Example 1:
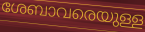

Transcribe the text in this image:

ശേബാവരെയുള്ള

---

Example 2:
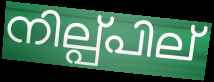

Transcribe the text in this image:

നില്പ്പില്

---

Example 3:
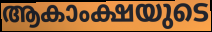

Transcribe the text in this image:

ആകാംക്ഷയുടെ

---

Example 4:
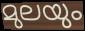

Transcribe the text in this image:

മുലയും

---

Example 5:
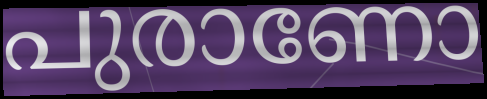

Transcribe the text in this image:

പുരാണോ